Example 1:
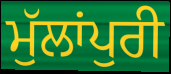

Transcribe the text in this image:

ਮੁੱਲਾਂਪੁਰੀ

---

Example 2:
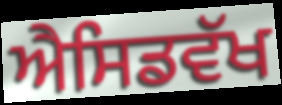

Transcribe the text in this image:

ਐਸਿਡਵੱਖ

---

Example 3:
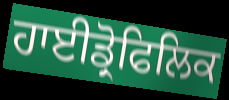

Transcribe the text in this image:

ਹਾਈਡ੍ਰੋਫਿਲਿਕ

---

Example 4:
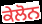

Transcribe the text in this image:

ਕੇਲੋਨ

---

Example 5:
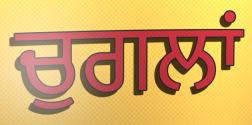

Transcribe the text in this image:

ਚੁਗਲਾਂ